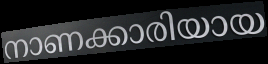
നാണക്കാരിയായ